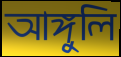
আঙ্গুলি